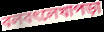
বলবৎলেখাপড়া